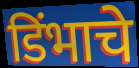
डिंभाचे